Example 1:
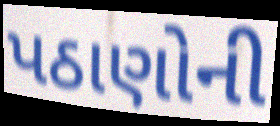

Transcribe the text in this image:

પઠાણોની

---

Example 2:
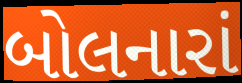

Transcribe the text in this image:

બોલનારાં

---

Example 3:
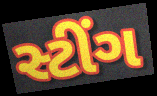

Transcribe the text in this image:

સ્ટીંગ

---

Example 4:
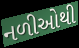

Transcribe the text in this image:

નળીઓથી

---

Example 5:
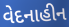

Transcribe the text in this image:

વેદનાહીન